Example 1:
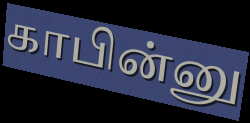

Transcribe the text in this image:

காபின்னு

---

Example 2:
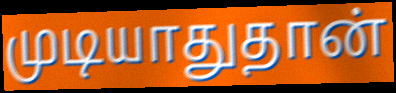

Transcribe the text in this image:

முடியாதுதான்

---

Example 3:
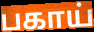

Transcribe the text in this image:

பகாய்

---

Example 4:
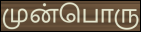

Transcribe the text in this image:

முன்பொரு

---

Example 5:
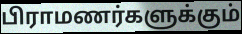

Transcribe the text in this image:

பிராமணர்களுக்கும்